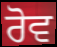
ਰੋਵ